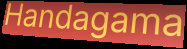
Handagama